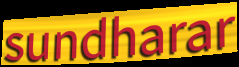
sundharar